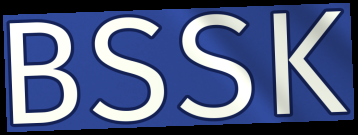
BSSK